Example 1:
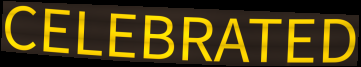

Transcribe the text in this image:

CELEBRATED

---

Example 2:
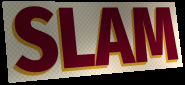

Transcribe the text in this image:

SLAM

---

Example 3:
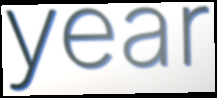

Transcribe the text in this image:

year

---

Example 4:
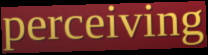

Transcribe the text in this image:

perceiving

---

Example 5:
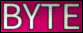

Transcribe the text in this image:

BYTE